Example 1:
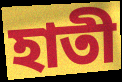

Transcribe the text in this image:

হাতী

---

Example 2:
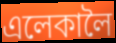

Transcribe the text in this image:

এলেকালৈ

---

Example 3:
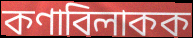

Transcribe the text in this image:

কণাবিলাকক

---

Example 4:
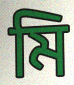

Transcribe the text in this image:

মি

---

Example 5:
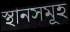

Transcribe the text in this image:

স্থানসমূহ